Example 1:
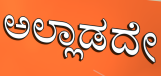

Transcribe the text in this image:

ಅಲ್ಲಾಡದೇ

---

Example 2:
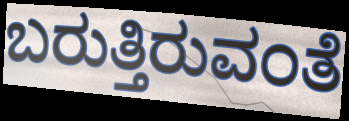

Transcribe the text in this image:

ಬರುತ್ತಿರುವಂತೆ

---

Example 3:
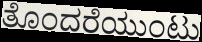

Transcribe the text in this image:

ತೊಂದರೆಯುಂಟು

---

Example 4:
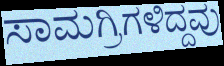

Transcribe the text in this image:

ಸಾಮಗ್ರಿಗಳಿದ್ದವು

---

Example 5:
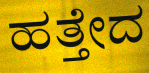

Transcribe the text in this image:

ಹತ್ತೇದ